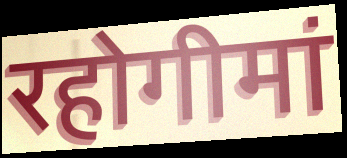
रहोगीमां